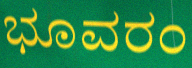
ಭೂವರಂ